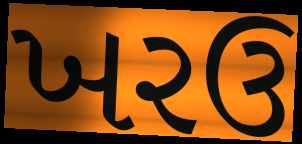
ખરઉ